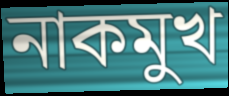
নাকমুখ